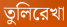
তুলিরেখা